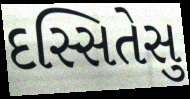
દસ્સિતેસુ